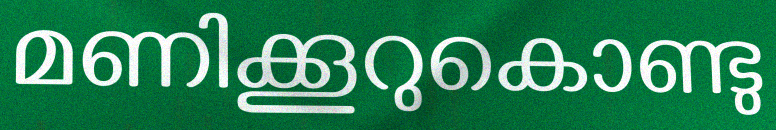
മണിക്കൂറുകൊണ്ടു